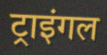
ट्राइंगल